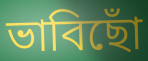
ভাবিছোঁ